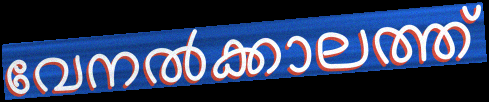
വേനൽക്കാലത്ത്